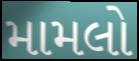
મામલો